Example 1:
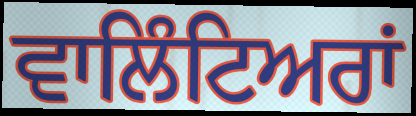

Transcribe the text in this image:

ਵਾਲਿੰਟਿਅਰਾਂ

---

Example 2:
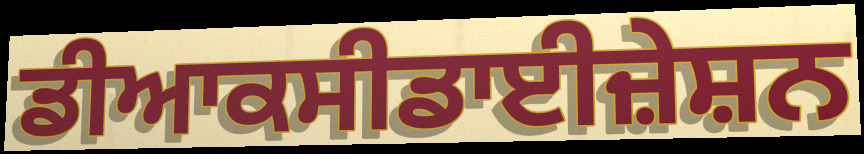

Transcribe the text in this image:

ਡੀਆਕਸੀਡਾਈਜ਼ੇਸ਼ਨ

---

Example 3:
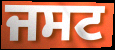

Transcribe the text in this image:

ਜਸਟ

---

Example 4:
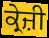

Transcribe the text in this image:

ਕ੍ਰੇਜ਼ੀ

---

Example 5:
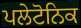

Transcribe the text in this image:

ਪਲੇਟੋਨਿਕ